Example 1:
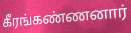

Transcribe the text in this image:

கீரங்கண்ணனார்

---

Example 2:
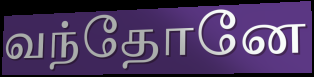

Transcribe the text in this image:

வந்தோனே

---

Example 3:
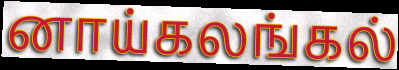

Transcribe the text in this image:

னாய்கலங்கல்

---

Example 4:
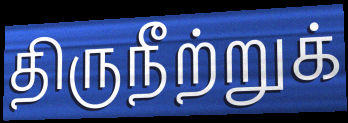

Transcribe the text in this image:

திருநீற்றுக்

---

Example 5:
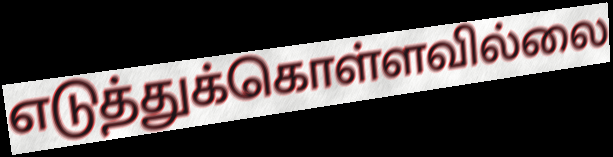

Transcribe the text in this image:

எடுத்துக்கொள்ளவில்லை